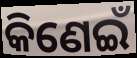
କିଣେଇଁ